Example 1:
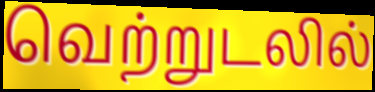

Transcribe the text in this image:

வெற்றுடலில்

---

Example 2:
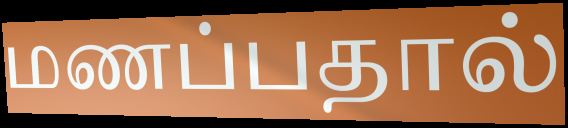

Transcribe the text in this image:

மணப்பதால்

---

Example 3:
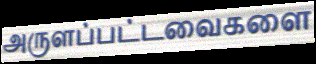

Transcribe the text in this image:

அருளப்பட்டவைகளை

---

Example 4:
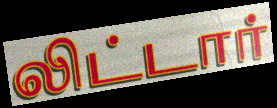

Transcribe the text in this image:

லிட்டார்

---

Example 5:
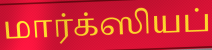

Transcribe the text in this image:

மார்க்ஸியப்